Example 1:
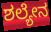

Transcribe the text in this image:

ಶಲ್ಯೇನ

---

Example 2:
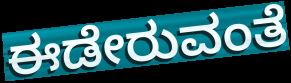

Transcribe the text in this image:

ಈಡೇರುವಂತೆ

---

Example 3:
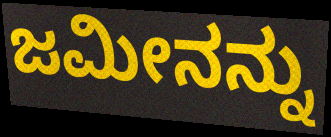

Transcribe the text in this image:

ಜಮೀನನ್ನು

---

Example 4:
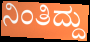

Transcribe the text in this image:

ನಿಂತಿದ್ದು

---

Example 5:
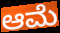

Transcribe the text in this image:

ಆಮೆ